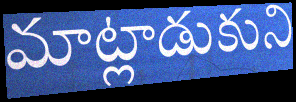
మాట్లాడుకుని